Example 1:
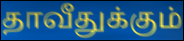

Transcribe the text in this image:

தாவீதுக்கும்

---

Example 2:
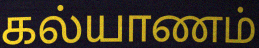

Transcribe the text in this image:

கல்யாணம்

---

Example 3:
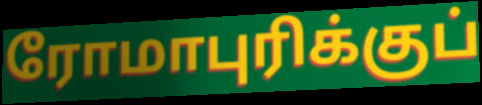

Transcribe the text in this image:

ரோமாபுரிக்குப்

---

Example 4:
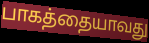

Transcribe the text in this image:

பாகத்தையாவது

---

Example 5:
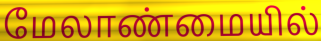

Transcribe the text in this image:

மேலாண்மையில்